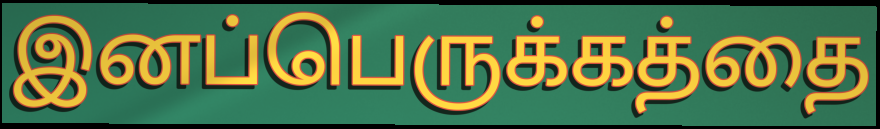
இனப்பெருக்கத்தை